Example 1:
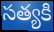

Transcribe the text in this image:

సత్యకి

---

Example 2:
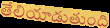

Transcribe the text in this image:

తేలియాడుతుంది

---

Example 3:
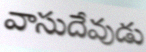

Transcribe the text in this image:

వాసుదేవుడు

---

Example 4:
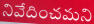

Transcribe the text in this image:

నివేదించమని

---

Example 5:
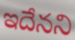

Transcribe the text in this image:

ఇదేనని